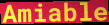
Amiable